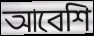
আবেশি